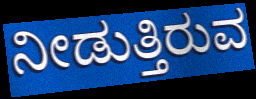
ನೀಡುತ್ತಿರುವ